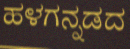
ಹಳಗನ್ನಡದ